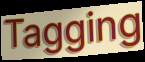
Tagging